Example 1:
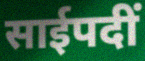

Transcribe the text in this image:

साईपदीं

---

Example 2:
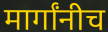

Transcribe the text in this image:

मार्गांनीच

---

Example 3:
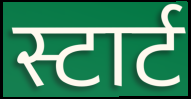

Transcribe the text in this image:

स्टार्ट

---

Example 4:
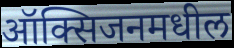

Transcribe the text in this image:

ऑक्सिजनमधील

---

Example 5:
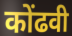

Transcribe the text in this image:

कोंढवी